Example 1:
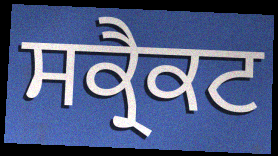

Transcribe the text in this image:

ਸਕ੍ਰੈਕਟ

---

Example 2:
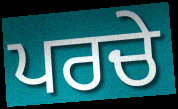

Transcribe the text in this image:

ਪਰਚੇ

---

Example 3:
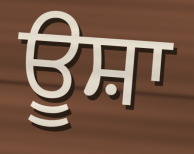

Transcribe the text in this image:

ਊਸ਼ਾ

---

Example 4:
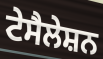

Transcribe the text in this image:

ਟੇਸੈਲੇਸ਼ਨ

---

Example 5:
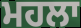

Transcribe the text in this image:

ਮਹਲਾ